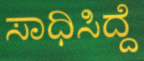
ಸಾಧಿಸಿದ್ದೆ